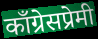
काँग्रेसप्रेमी